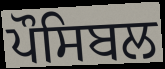
ਪੌਸਿਬਲ